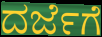
ದರ್ಜೆಗೆ